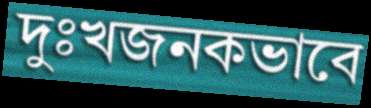
দুঃখজনকভাবে